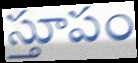
స్తూపం